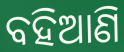
ବହିଆଣି